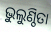
ଭୁଲୁଣ୍ଠିତା